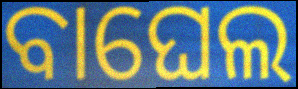
ବାଘେଲ